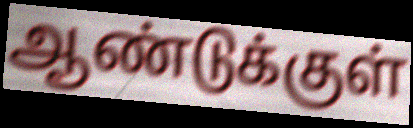
ஆண்டுக்குள்